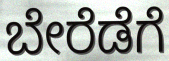
ಬೇರೆಡೆಗೆ